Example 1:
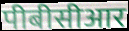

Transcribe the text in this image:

पीबीसीआर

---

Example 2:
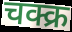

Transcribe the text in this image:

चक्क्र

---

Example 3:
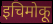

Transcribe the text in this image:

इचिमोकू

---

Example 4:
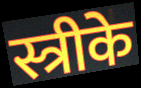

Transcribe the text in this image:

स्त्रीके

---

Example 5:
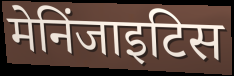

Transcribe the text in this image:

मेनिंजाइटिस